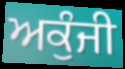
ਅਕੁੰਜੀ